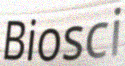
Biosci